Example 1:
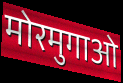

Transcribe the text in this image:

मोरमुगाओ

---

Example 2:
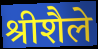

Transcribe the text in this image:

श्रीशैले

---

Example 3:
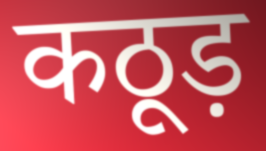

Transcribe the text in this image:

कठूड़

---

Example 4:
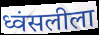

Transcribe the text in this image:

ध्वंसलीला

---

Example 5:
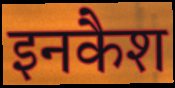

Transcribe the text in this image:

इनकैश